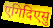
एगिदिएसु